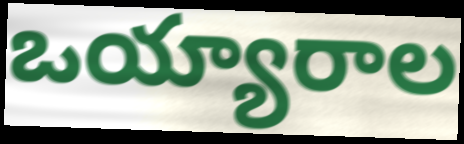
ఒయ్యారాల